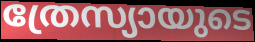
ത്രേസ്യായുടെ